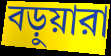
বড়ুয়ারা